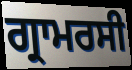
ਗ੍ਰਾਮਰਸੀ